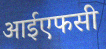
आईएफसी